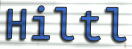
Hiltl